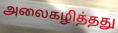
அலைகழித்தது